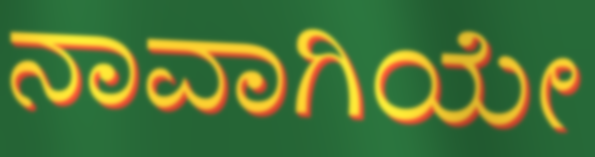
ನಾವಾಗಿಯೇ